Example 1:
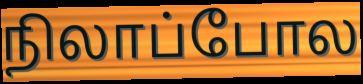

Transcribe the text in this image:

நிலாப்போல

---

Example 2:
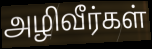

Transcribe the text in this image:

அழிவீர்கள்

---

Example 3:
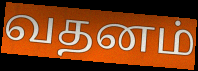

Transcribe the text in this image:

வதனம்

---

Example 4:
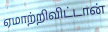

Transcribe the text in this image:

ஏமாற்றிவிட்டான்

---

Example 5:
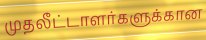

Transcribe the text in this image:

முதலீட்டாளர்களுக்கான